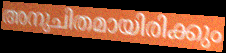
അനുചിതമായിരിക്കും